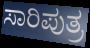
ಸಾರಿಪುತ್ರ